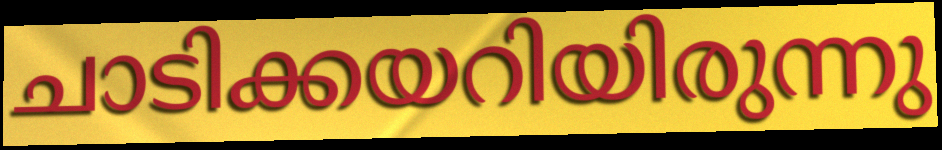
ചാടിക്കയറിയിരുന്നു